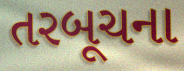
તરબૂચના